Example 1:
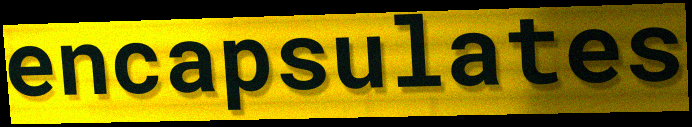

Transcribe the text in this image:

encapsulates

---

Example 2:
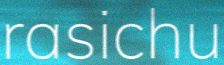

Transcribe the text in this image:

rasichu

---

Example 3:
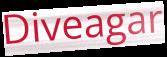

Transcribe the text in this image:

Diveagar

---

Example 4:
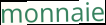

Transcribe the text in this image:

monnaie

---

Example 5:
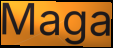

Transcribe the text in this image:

Maga